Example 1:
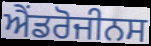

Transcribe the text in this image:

ਐਂਡਰੋਜੀਨਸ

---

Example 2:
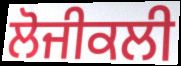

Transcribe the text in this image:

ਲੋਜੀਕਲੀ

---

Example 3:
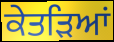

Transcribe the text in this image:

ਕੇਤੜਿਆਂ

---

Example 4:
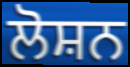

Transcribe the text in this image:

ਲੋਸ਼ਨ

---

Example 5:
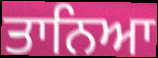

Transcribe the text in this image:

ਤਾਨਿਆ